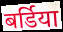
बर्डिया